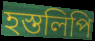
হস্তলিপি